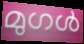
മുഗൾ